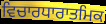
ਵਿਚਾਰਧਾਰਾਤਮਿਕ